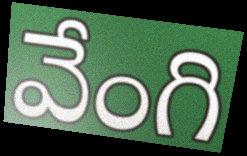
వేంగి